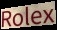
Rolex